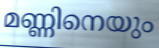
മണ്ണിനെയും